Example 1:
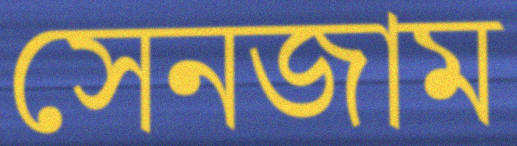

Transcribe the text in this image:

সেনজাম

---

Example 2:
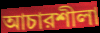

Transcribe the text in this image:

আচারশীলা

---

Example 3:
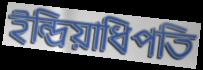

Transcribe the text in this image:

ইন্দ্রিয়াধিপতি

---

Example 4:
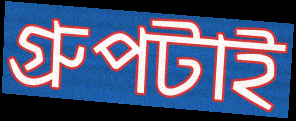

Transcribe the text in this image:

গ্রুপটাই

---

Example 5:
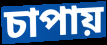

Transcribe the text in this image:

চাপায়